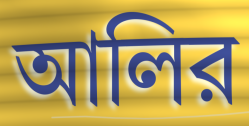
আলির